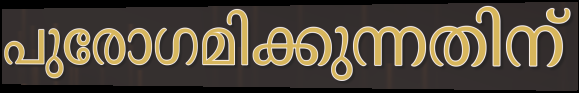
പുരോഗമിക്കുന്നതിന്